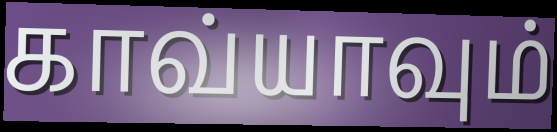
காவ்யாவும்